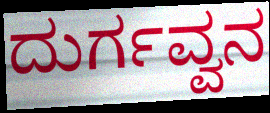
ದುರ್ಗವ್ವನ